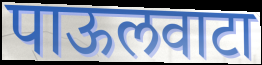
पाऊलवाटा